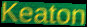
Keaton